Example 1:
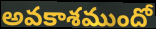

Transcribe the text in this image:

అవకాశముందో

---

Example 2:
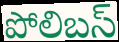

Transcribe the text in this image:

పోలిబస్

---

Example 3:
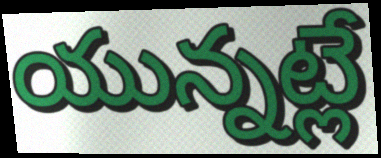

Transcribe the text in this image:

యున్నట్లే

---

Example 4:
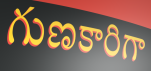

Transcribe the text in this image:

గుణకారిగా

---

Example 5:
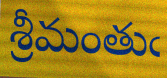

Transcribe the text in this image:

శ్రీమంతుఁ